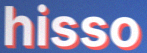
hisso